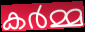
കർമ്മ